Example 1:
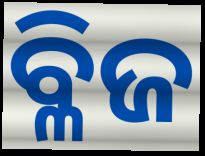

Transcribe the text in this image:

ବ୍ଳିଜ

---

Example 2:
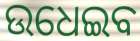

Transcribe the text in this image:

ଉଧେଇବ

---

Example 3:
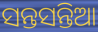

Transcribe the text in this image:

ସନ୍ତସନ୍ତିଆ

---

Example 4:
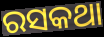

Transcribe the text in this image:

ରସକଥା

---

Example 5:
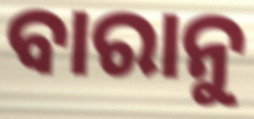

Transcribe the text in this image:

ବାରାନୁ